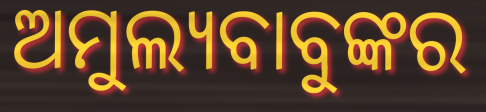
ଅମୁଲ୍ୟବାବୁଙ୍କର